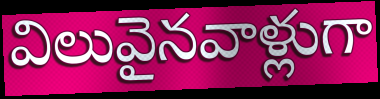
విలువైనవాళ్లుగా